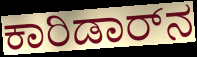
ಕಾರಿಡಾರ್‌ನ